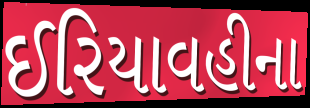
ઈરિયાવહીના